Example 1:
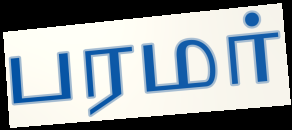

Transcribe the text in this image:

பரமர்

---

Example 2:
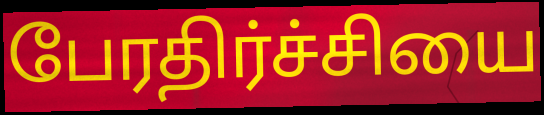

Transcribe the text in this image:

பேரதிர்ச்சியை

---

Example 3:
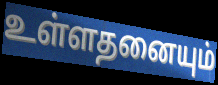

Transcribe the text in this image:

உள்ளதனையும்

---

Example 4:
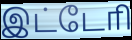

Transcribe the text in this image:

இட்டேரி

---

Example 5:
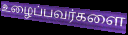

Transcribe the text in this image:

உழைப்பவர்களை